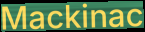
Mackinac